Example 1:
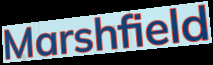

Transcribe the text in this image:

Marshfield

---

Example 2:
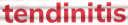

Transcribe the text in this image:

tendinitis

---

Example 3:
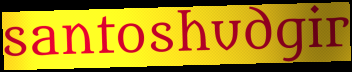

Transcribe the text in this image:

santoshudgir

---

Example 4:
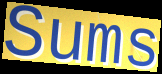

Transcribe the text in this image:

Sums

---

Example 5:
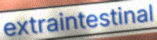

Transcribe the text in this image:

extraintestinal